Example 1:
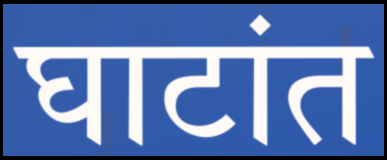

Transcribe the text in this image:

घाटांत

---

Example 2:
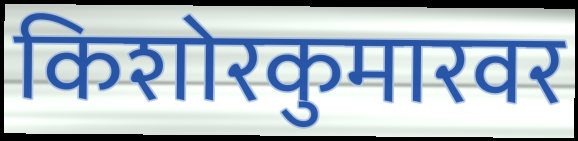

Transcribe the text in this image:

किशोरकुमारवर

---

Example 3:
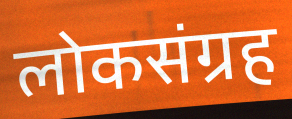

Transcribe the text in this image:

लोकसंग्रह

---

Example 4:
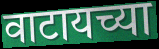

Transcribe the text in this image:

वाटायच्या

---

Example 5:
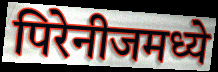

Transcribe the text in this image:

पिरेनीजमध्ये